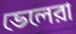
ভেলেরা